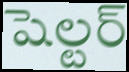
షెల్టర్